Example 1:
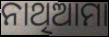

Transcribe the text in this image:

ନାଥିଆମା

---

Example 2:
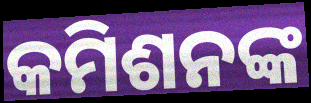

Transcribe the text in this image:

କମିଶନଙ୍କ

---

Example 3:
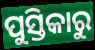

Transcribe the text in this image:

ପୁସ୍ତିକାରୁ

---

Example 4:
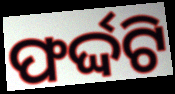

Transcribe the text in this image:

ଫର୍ଦ୍ଦଟି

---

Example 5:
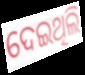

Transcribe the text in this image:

ଦେଇଥିଲି